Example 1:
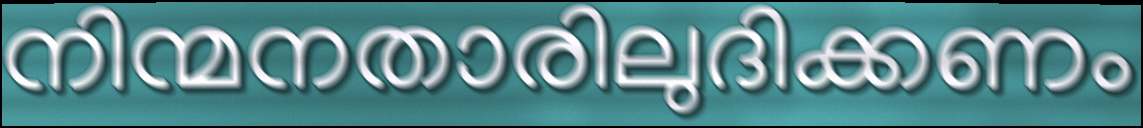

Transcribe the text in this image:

നിന്മനതാരിലുദിക്കണം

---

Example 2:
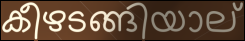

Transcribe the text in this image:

കീഴടങ്ങിയാല്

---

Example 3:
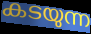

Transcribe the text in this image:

കടയുന്ന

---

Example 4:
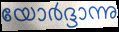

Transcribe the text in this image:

യോർദ്ദാന്നു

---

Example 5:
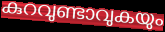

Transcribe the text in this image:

കുറവുണ്ടാവുകയും